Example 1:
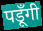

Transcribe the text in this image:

पडूँगी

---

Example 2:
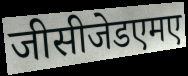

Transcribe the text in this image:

जीसीजेडएमए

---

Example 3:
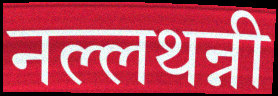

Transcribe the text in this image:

नल्लथन्नी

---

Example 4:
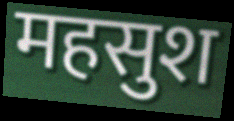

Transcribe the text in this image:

महसुश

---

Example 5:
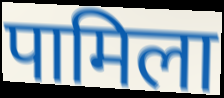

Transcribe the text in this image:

पामिला